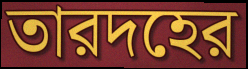
তারদহের